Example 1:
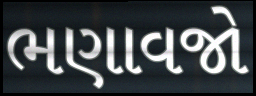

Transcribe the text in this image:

ભણાવજો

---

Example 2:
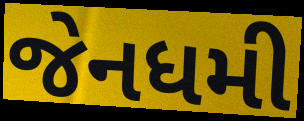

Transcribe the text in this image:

જેનધમી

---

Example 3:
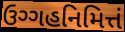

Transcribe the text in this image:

ઉગ્ગહનિમિત્તં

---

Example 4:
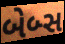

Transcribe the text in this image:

બેબ્સ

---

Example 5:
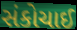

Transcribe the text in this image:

સંકોચાઈ